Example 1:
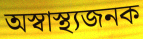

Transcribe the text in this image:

অস্বাস্থ্যজনক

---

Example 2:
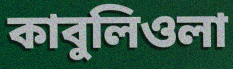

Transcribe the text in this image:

কাবুলিওলা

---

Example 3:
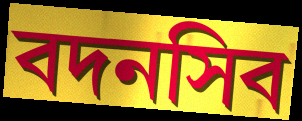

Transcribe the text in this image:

বদনসিব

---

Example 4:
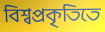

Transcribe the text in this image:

বিশ্বপ্রকৃতিতে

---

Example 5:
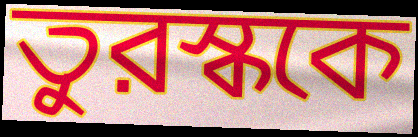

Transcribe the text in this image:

তুরস্ককে